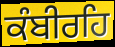
ਕੰਬੀਰਹਿ